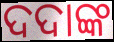
ଦଦାଙ୍କ